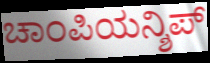
ಚಾಂಪಿಯನ್ಶಿಪ್